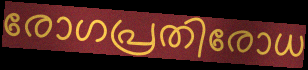
രോഗപ്രതിരോധ